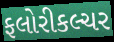
ફલોરીકલ્ચર